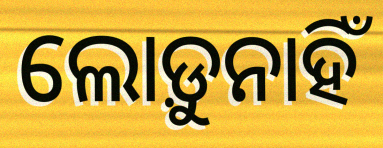
ଲୋଡ଼ୁନାହିଁ